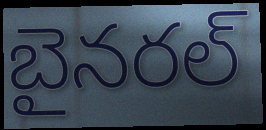
బైనరల్